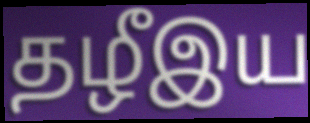
தழீஇய